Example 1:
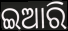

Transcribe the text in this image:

ଇଆରି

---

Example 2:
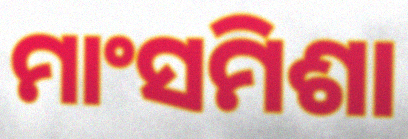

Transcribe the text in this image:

ମାଂସମିଶା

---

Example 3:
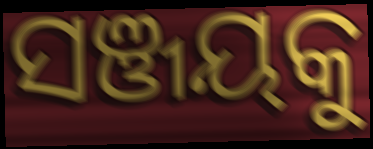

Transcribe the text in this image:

ସଞ୍ଜୟକୁ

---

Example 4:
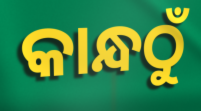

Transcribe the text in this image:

କାନ୍ଧଠୁଁ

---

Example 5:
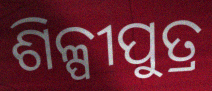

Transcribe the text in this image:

ଶିଳ୍ପୀପୁତ୍ର